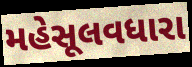
મહેસૂલવધારા